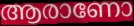
ആരാണോ